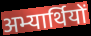
अभ्यार्थियों